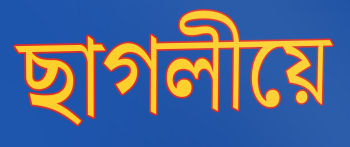
ছাগলীয়ে